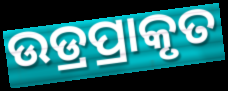
ଉଡ୍ରପ୍ରାକୃତ